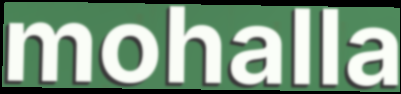
mohalla